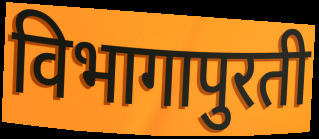
विभागापुरती